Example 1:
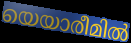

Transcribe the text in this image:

യെയാരീമിൽ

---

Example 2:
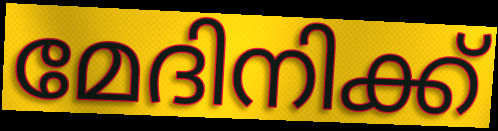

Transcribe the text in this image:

മേദിനിക്ക്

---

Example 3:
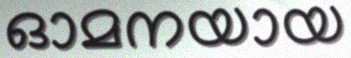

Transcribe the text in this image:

ഓമനയായ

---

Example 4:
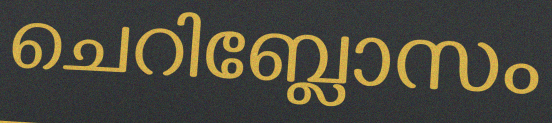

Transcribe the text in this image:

ചെറിബ്ലോസം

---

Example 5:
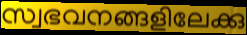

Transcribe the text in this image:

സ്വഭവനങ്ങളിലേക്കു